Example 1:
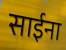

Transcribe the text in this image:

साईना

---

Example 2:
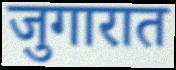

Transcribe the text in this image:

जुगारात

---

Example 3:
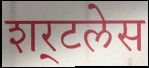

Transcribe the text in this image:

शर्टलेस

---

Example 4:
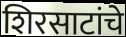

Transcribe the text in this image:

शिरसाटांचे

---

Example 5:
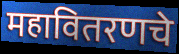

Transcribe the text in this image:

महावितरणचे